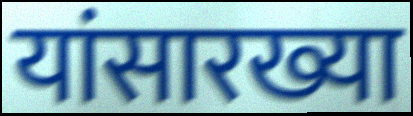
यांसारख्‍या